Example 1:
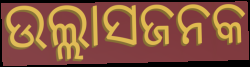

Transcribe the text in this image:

ଉଲ୍ଲାସଜନକ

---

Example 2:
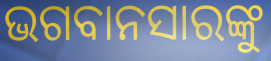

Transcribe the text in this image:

ଭଗବାନସାରଙ୍କୁ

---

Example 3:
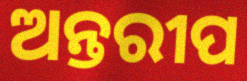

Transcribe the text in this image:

ଅନ୍ତରୀପ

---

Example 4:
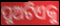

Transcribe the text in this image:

ପୁଅଟିଏକୁ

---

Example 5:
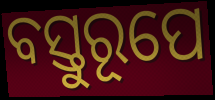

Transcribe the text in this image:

ବସ୍ତୁରୂପେ